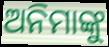
ଅନିମାଙ୍କୁ